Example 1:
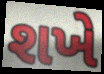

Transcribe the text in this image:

શખે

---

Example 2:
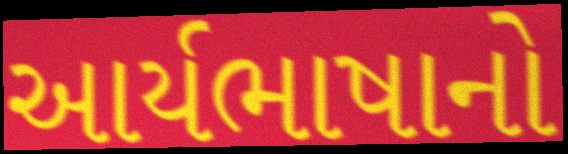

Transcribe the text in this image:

આર્યભાષાનો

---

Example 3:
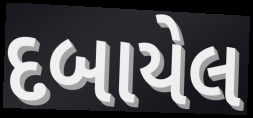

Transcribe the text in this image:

દબાયેલ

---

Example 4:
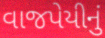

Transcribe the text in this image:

વાજપેયીનું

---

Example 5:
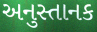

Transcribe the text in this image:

અનુસ્તાનક